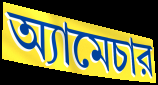
অ্যামেচার